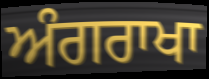
ਅੰਗਰਾਖਾ